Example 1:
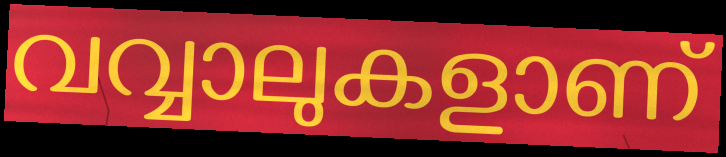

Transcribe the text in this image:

വവ്വാലുകളാണ്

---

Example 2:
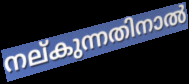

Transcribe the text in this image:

നല്കുന്നതിനാൽ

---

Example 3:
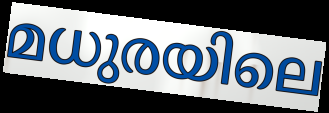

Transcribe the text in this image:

മധുരയിലെ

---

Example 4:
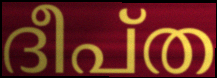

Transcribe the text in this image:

ദീപ്ത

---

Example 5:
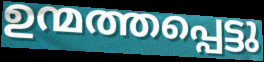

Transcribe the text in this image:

ഉന്മത്തപ്പെട്ടു